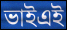
ভাইএই